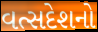
વત્સદેશનો